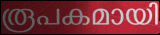
രൂപകമായി